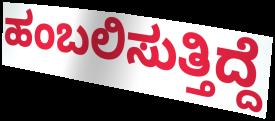
ಹಂಬಲಿಸುತ್ತಿದ್ದೆ